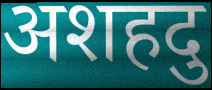
अशहदु